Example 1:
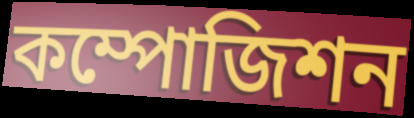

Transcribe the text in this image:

কম্পোজিশন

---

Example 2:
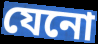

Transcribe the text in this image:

যেনো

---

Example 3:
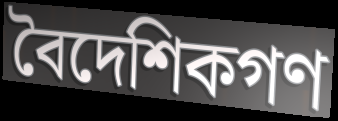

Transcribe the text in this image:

বৈদেশিকগণ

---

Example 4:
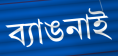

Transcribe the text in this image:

ব্যাঙনাই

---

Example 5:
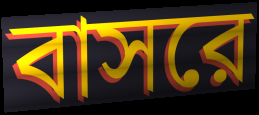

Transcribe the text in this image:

বাসরে